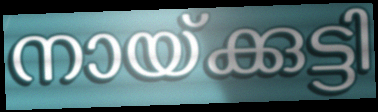
നായ്‌ക്കുട്ടി